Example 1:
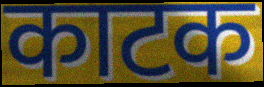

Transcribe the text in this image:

काटक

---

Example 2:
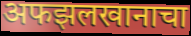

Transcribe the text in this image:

अफझलखानाचा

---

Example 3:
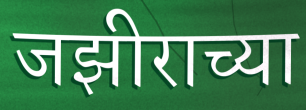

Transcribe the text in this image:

जझीराच्या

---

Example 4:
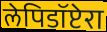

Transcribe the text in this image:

लेपिडॉप्टेरा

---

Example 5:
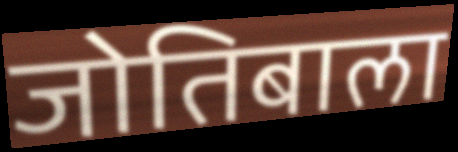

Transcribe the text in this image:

जोतिबाला